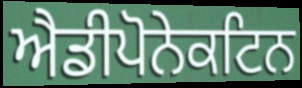
ਐਡੀਪੋਨੇਕਟਿਨ